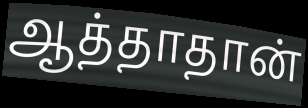
ஆத்தாதான்